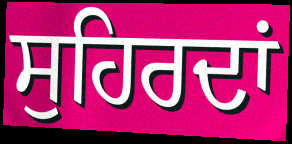
ਸੁਹਿਰਦਾਂ